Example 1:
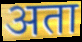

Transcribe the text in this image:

अता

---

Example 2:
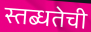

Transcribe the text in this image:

स्तब्धतेची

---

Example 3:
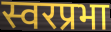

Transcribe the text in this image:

स्वरप्रभा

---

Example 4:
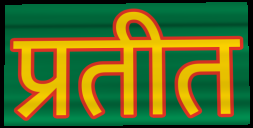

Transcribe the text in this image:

प्रतीत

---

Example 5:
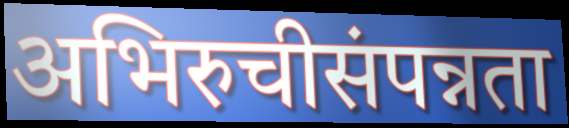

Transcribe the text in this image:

अभिरुचीसंपन्नता